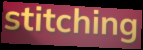
stitching